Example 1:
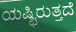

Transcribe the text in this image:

ಯಷ್ಟಿರುತ್ತದೆ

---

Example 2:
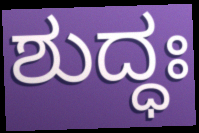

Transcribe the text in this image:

ಶುದ್ಧಃ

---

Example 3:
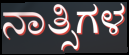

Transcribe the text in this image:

ನಾತ್ಸಿಗಳ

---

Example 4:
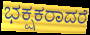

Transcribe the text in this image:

ಭಕ್ಷಕರಾದರೆ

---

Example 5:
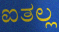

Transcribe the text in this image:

ಐತಲ್ಲ